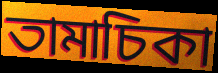
তামাচিকা